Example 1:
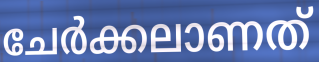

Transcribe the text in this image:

ചേർക്കലാണത്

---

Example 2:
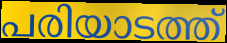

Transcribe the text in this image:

പരിയാടത്ത്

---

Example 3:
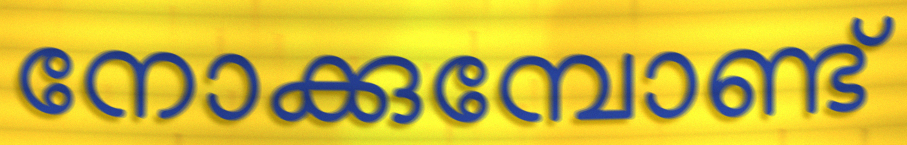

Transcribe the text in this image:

നോക്കുമ്പോണ്ട്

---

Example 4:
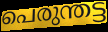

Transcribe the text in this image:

പെരുന്തട്ട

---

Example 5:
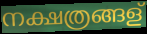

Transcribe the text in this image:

നക്ഷത്രങ്ങള്